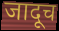
जादूच